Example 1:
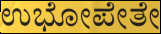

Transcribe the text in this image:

ಉಭೋಪೇತೇ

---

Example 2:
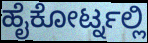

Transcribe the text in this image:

ಹೈಕೋರ್ಟ್ನಲ್ಲಿ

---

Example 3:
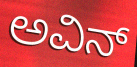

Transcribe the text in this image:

ಅವಿನ್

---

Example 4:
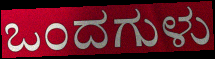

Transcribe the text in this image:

ಒಂದಗುಳು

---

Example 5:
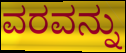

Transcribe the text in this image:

ವರವನ್ನು